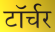
टॉर्चर